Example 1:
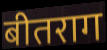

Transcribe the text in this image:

बीतराग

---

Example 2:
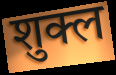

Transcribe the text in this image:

शुक्‍ल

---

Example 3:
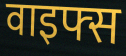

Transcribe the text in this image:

वाइफ्स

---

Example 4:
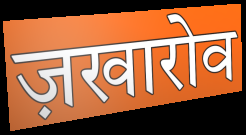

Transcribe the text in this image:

ज़खारोव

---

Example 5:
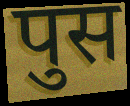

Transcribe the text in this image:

पुस